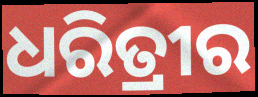
ଧରିତ୍ରୀର